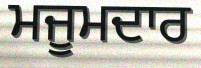
ਮਜੂਮਦਾਰ